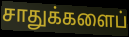
சாதுக்களைப்